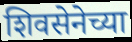
शिवसेनेच्या